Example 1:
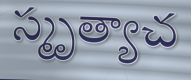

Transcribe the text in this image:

స్మృత్యాచ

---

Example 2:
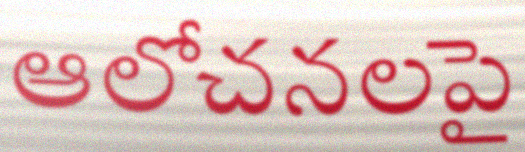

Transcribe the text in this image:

ఆలోచనలపై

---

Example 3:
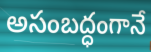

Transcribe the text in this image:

అసంబద్ధంగానే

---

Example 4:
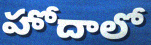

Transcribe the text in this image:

హోదాలో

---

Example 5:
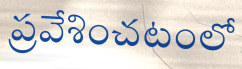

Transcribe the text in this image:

ప్రవేశించటంలో